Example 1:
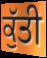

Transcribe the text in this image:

ਕੁੱਤੀ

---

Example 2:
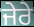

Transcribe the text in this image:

ਜੇਰੇ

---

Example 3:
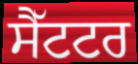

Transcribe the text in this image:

ਸੈੱਟਟਰ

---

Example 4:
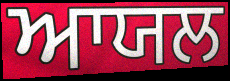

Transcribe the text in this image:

ਆਯਲ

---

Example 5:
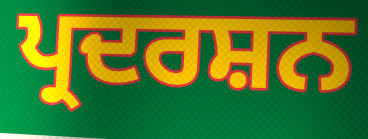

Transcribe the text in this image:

ਪ੍ਰਦਰਸ਼ਨ